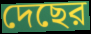
দেছের